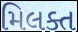
મિલક્ત